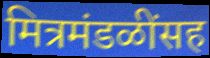
मित्रमंडळींसह